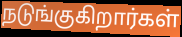
நடுங்குகிறார்கள்